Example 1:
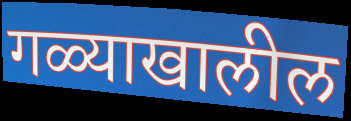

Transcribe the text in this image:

गळ्याखालील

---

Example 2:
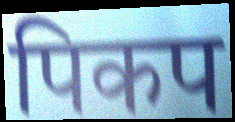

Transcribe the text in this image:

पिकप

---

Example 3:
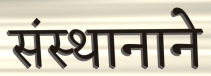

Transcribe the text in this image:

संस्थानाने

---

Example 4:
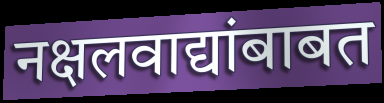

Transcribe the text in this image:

नक्षलवाद्यांबाबत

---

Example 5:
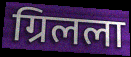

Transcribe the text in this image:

ग्रिलला